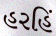
હરહિં